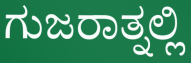
ಗುಜರಾತ್ನಲ್ಲಿ